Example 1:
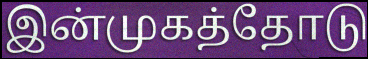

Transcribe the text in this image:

இன்முகத்தோடு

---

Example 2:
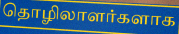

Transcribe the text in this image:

தொழிலாளர்களாக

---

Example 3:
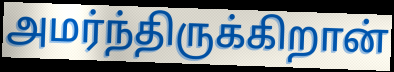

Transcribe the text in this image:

அமர்ந்திருக்கிறான்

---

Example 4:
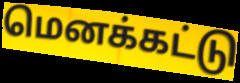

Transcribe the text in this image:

மெனக்கட்டு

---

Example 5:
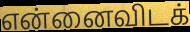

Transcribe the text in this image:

என்னைவிடக்